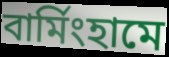
বার্মিংহামে